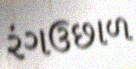
રંગઉછાળ